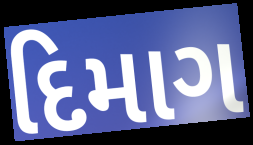
દિમાગ